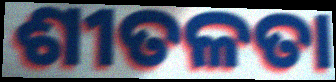
ଶୀତଳତା